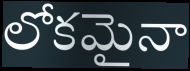
లోకమైనా